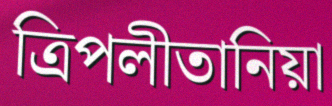
ত্রিপলীতানিয়া